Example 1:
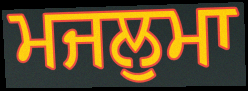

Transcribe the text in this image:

ਮਜਲੁਮਾ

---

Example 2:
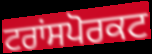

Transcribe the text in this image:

ਟਰਾਂਸਪੋਰਕਟ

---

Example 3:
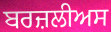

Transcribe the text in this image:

ਬਰਜ਼ਲੀਅਸ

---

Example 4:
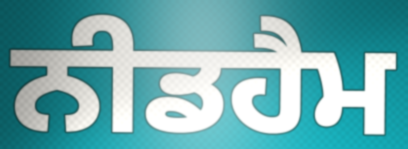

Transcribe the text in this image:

ਨੀਡਹੈਮ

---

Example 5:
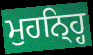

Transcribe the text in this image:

ਮੁਹਨ੍ਹ੍ਹਿ